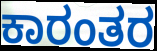
ಕಾರಂತರ